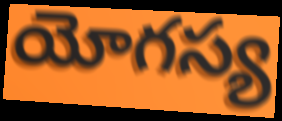
యోగస్య